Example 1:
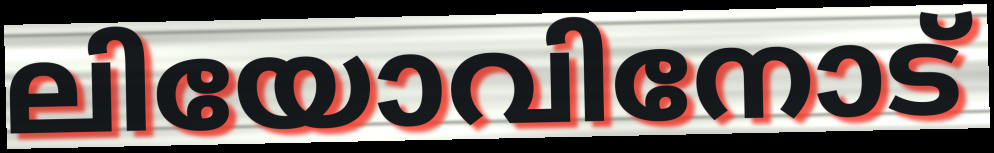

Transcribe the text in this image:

ലിയോവിനോട്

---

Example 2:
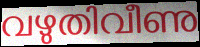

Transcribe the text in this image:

വഴുതിവീണു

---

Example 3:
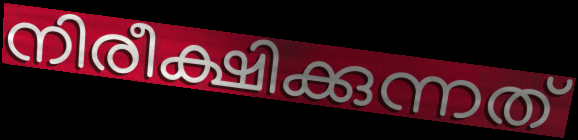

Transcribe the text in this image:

നിരീക്ഷിക്കുന്നത്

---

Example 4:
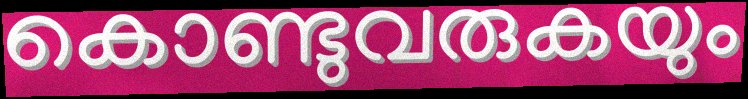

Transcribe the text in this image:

കൊണ്ടുവരുകയും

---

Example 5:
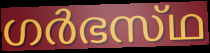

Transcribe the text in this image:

ഗർഭസ്‌ഥ